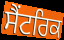
ਸੈਂਟਰਿਕ